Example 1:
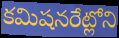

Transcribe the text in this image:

కమిషనరేట్లోని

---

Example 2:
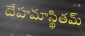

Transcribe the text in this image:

దేహమాస్థితమ్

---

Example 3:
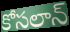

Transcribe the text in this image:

కోసలాన్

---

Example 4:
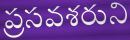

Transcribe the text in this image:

ప్రసవశరుని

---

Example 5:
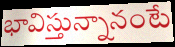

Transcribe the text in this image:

భావిస్తున్నానంటే